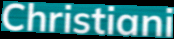
Christiani